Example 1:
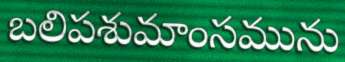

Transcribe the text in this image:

బలిపశుమాంసమును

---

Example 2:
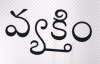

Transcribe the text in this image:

వ్యక్తిం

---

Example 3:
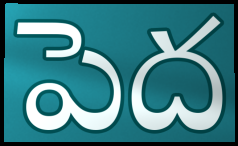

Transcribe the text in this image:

పెద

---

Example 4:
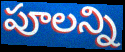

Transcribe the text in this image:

పూలన్ని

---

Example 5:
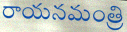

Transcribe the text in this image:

రాయనమంత్రి